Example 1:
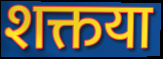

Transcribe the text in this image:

शक्तया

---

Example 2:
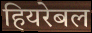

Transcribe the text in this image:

हियरेबल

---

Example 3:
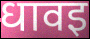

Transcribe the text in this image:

धावइ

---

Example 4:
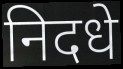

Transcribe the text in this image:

निदधे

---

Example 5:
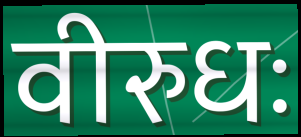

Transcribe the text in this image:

वीरुधः